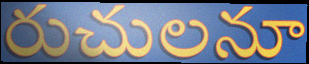
రుచులనూ